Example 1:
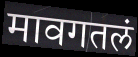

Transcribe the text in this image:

मावगतलं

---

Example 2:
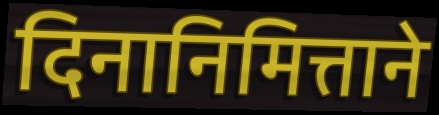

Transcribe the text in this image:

दिनानिमित्ताने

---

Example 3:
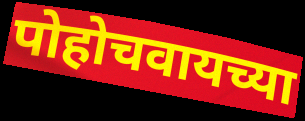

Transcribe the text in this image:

पोहोचवायच्या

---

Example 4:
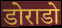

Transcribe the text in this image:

डोराडो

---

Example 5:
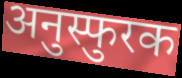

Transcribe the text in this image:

अनुस्फुरक